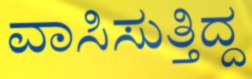
ವಾಸಿಸುತ್ತಿದ್ದ